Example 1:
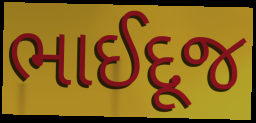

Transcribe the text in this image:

ભાઈદૂજ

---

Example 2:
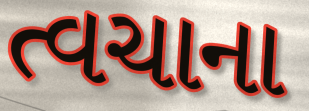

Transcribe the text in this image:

ત્વચાના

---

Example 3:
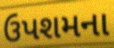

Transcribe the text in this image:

ઉપશમના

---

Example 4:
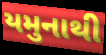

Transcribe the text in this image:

યમુનાથી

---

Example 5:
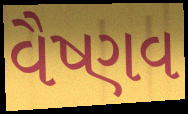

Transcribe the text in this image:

વૈષ્ણવ